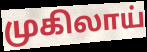
முகிலாய்